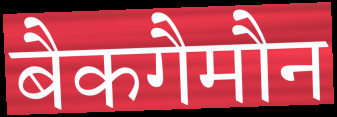
बैकगैमौन